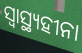
ସ୍ଵାସ୍ଥ୍ୟହୀନା